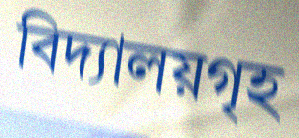
বিদ্যালয়গৃহ